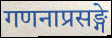
गणनाप्रसङ्गे